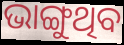
ଭାଙ୍ଗୁଥିବ